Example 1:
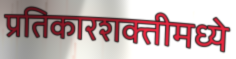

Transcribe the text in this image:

प्रतिकारशक्तीमध्ये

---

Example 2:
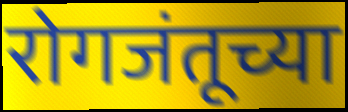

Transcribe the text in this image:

रोगजंतूच्या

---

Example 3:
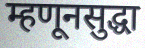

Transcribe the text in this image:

म्हणूनसुद्धा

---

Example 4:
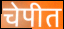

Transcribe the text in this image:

चेपीत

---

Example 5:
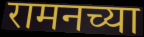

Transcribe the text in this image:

रामनच्या